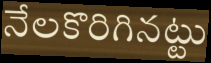
నేలకొరిగినట్టు